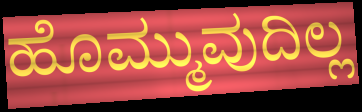
ಹೊಮ್ಮುವುದಿಲ್ಲ